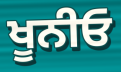
ਖੂਨੀਓ